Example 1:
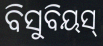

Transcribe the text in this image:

ବିସୁବିୟସ୍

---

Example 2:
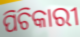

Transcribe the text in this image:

ପିଚିକାରୀ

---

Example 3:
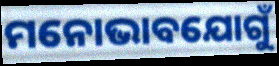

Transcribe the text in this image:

ମନୋଭାବଯୋଗୁଁ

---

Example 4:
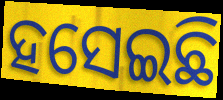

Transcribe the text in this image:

ହସେଇଛି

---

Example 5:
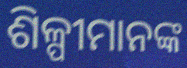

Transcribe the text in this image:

ଶିଳ୍ପୀମାନଙ୍କ